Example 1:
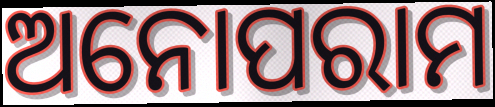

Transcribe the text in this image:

ଅନୋପରାମ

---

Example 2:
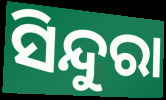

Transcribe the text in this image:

ସିନ୍ଦୁରା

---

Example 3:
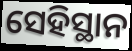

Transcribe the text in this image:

ସେହିସ୍ଥାନ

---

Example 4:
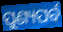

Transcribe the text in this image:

ପୁଣ୍ୟପର୍ବ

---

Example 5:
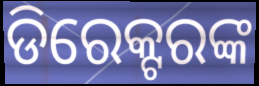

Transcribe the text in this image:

ଡିରେକ୍ଟରଙ୍କ